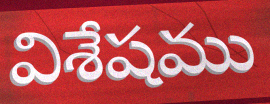
విశేషము